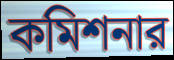
কমিশনার